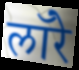
लॉरे